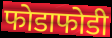
फोडाफोडी